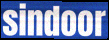
sindoor